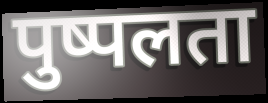
पुष्पलता